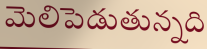
మెలిపెడుతున్నది